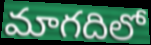
మాగదిలో